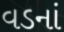
વડનાં